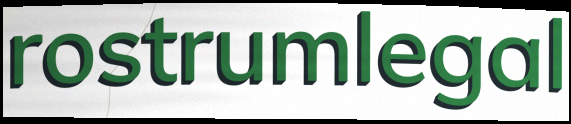
rostrumlegal